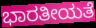
ಭಾರತೀಯತೆ